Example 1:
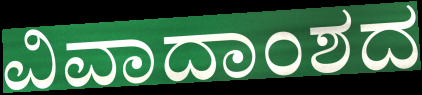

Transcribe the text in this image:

ವಿವಾದಾಂಶದ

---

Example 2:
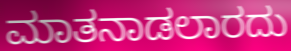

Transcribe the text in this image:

ಮಾತನಾಡಲಾರದು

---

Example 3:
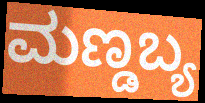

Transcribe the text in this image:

ಮಣ್ಡಬ್ಯ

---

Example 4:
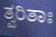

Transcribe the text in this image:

ತ್ವರಿತಾಃ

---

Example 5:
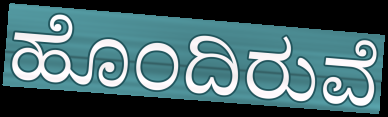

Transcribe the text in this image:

ಹೊಂದಿರುವೆ